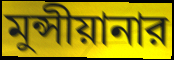
মুন্সীয়ানার